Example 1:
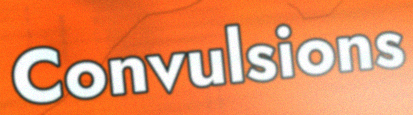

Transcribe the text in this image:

Convulsions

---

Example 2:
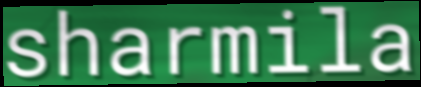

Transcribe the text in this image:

sharmila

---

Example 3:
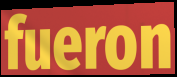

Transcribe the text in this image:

fueron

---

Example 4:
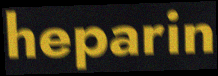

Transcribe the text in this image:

heparin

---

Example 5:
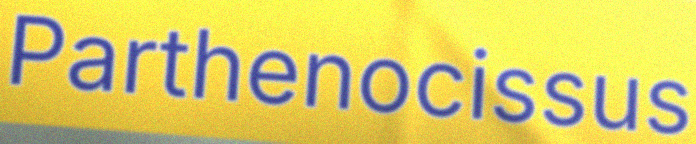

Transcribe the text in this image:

Parthenocissus